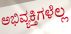
ಅಭಿವ್ಯಕ್ತಿಗಳೆಲ್ಲ